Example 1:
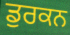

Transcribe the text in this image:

ਡੁਰਕਨ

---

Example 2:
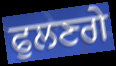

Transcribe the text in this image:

ਫੁਲਣਗੇ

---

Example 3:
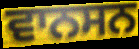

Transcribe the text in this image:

ਵਾਨਸਨ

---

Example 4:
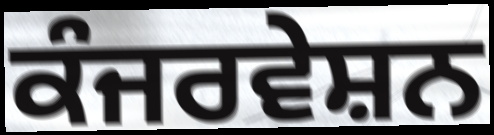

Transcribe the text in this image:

ਕੰਜਰਵੇਸ਼ਨ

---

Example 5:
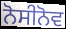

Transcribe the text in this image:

ਨੋਸੀਨੋਵ